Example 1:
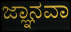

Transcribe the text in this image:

ಜ್ಞಾನವಾ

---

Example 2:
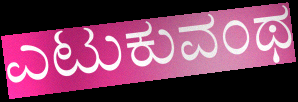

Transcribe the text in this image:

ಎಟುಕುವಂಥ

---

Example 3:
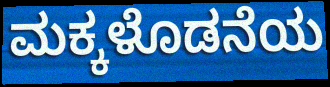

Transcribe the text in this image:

ಮಕ್ಕಳೊಡನೆಯ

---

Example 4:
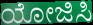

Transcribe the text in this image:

ಯೋಜಿಸಿ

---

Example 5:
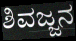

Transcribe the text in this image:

ಶಿವಜ್ಜನ